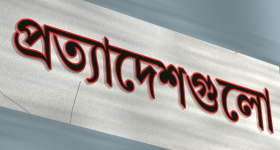
প্রত্যাদেশগুলো